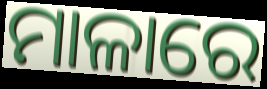
ମାଳାରେ